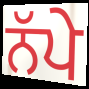
ਨੱਪੇ